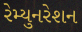
રેમ્યુનરેશન